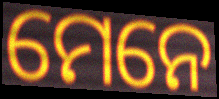
ମେନେ